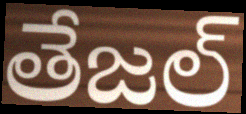
తేజల్